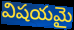
విషయమై